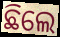
ଛିଲେ